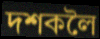
দশকলৈ